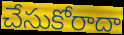
చేసుకోరాదా